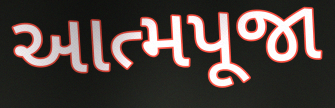
આત્મપૂજા